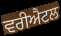
ਵਰੀਐਟਲ